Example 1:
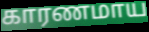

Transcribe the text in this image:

காரணமாய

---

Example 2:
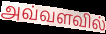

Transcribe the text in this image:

அவ்வளவில்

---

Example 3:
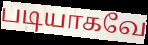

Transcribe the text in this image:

படியாகவே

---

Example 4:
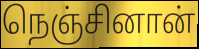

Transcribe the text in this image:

நெஞ்சினான்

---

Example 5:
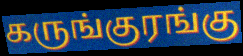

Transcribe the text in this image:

கருங்குரங்கு